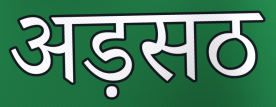
अड़सठ